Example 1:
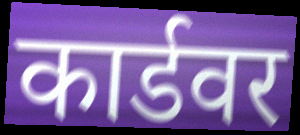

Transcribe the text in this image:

कार्डवर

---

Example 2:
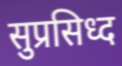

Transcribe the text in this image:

सुप्रसिध्द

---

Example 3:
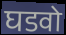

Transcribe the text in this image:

घडवो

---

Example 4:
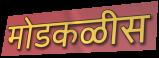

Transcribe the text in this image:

मोडकळीस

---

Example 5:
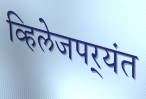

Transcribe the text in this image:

व्हिलेजपर्यंत